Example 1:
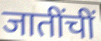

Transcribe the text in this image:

जातींचीं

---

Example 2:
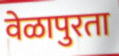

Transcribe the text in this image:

वेळापुरता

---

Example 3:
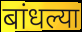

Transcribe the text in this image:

बांधल्या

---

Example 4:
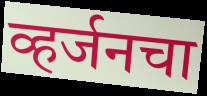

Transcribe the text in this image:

व्हर्जनचा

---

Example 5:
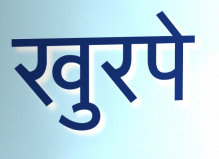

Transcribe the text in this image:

खुरपे